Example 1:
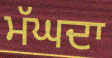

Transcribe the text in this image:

ਮੱਘਦਾ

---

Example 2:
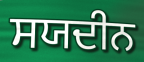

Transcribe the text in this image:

ਸਯਦੀਨ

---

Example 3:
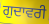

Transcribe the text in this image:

ਗੁਦਾਵਰੀ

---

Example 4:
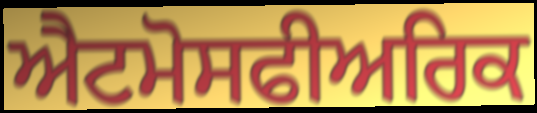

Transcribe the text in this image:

ਐਟਮੋਸਫੀਅਰਿਕ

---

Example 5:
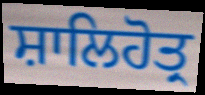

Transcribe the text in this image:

ਸ਼ਾਲਿਹੋਤ੍ਰ